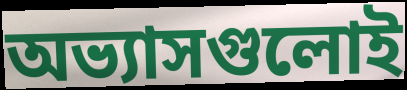
অভ্যাসগুলোই